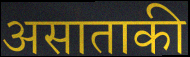
असाताकी